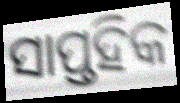
ସାପ୍ତହିକ